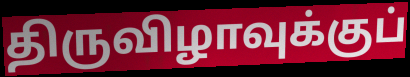
திருவிழாவுக்குப்